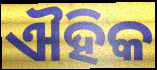
ଐହିକ